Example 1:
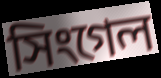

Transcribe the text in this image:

সিংগেল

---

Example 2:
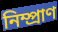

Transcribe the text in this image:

নিম্প্রাণ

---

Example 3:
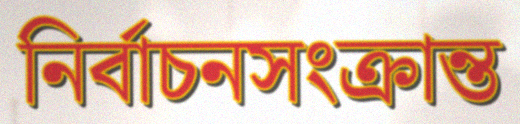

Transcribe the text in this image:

নির্বাচনসংক্রান্ত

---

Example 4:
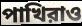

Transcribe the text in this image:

পাখিরাও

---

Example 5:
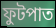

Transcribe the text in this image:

ফুটপাত